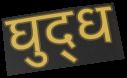
घुद्ध